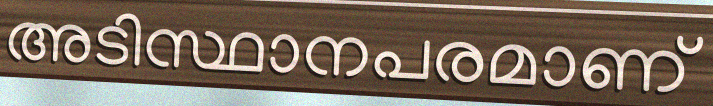
അടിസ്ഥാനപരമാണ്